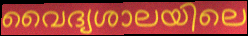
വൈദ്യശാലയിലെ